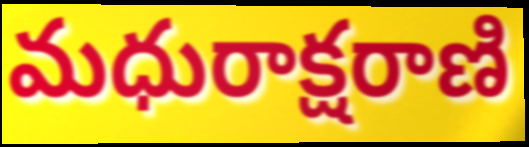
మధురాక్షరాణి